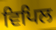
ਵਿਪਿਲ